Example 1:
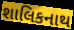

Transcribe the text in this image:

શાલિકનાથ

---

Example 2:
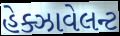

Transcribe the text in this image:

હેક્ઝાવેલન્ટ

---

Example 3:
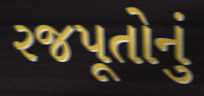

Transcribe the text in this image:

રજપૂતોનું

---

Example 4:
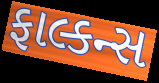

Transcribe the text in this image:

ફાલ્કન્સ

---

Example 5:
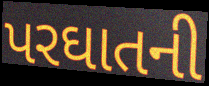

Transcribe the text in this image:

પરઘાતની